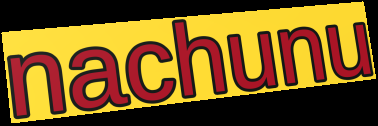
nachunu